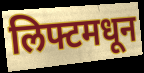
लिफ्टमधून